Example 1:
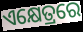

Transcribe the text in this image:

ଏକ୍ଷେତ୍ରରେ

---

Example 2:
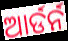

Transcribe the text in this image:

ଆର୍ଡର୍ନ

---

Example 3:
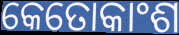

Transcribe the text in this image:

କେତୋକାଂଶ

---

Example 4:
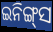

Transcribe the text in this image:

ଇନିଙ୍ଗ୍‌ସ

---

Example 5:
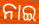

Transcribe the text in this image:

ନାଇ